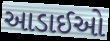
આડાઈઓ